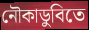
নৌকাডুবিতে